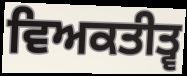
ਵਿਅਕਤੀਤ੍ਵ